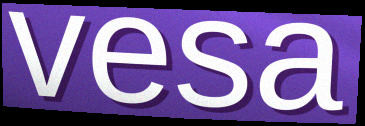
vesa